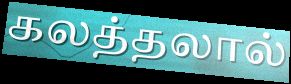
கலத்தலால்